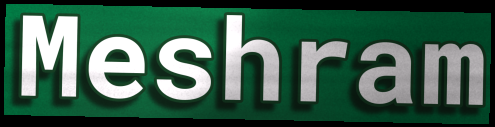
Meshram